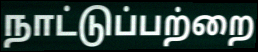
நாட்டுப்பற்றை